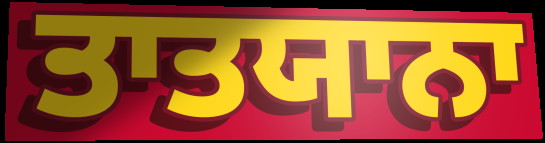
ਤਾਤਯਾਨਾ